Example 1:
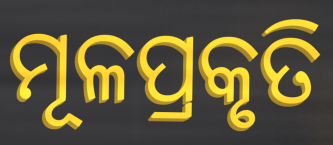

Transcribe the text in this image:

ମୂଳପ୍ରକୃତି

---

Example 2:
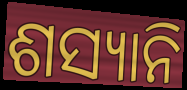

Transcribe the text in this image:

ଶସ୍ୟାନି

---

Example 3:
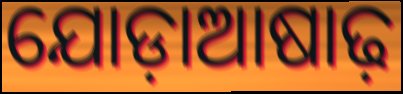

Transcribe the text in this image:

ଯୋଡ଼ାଆଷାଢ଼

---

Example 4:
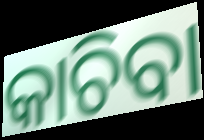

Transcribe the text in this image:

କାଚିବା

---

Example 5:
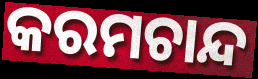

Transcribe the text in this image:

କରମଚାନ୍ଦ